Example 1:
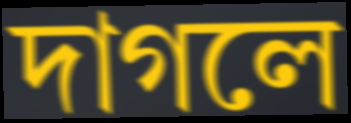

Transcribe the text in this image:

দাগলে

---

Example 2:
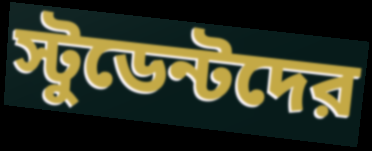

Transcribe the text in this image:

স্টুডেন্টদের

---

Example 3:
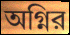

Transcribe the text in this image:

অগ্নির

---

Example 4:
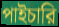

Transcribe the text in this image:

পাইচারি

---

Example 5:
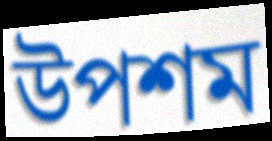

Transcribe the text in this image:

উপশম